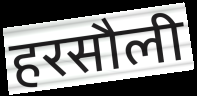
हरसौली